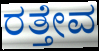
ರತ್ತೇವ